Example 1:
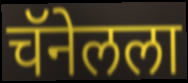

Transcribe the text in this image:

चॅनेलला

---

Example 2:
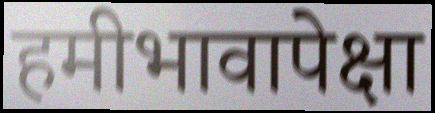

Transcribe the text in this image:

हमीभावापेक्षा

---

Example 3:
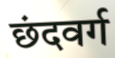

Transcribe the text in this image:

छंदवर्ग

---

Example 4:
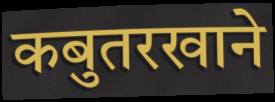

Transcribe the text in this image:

कबुतरखाने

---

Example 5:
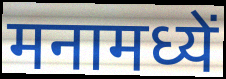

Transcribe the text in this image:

मनामध्यें